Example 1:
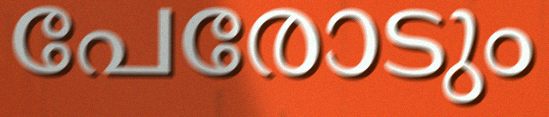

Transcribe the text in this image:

പേരോടും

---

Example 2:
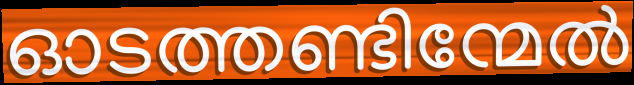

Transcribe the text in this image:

ഓടത്തണ്ടിന്മേൽ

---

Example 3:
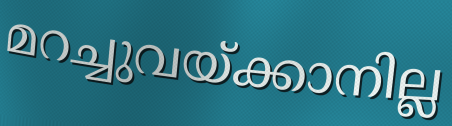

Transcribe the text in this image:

മറച്ചുവയ്ക്കാനില്ല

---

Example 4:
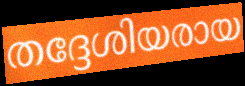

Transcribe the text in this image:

തദ്ദേശിയരായ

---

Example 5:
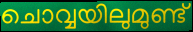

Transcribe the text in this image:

ചൊവ്വയിലുമുണ്ട്